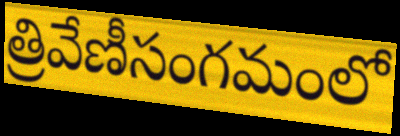
త్రివేణీసంగమంలో